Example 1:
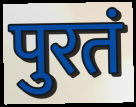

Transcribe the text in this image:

पुरतं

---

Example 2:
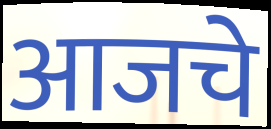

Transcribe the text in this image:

आजचे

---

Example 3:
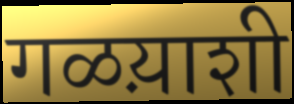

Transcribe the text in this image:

गळय़ाशी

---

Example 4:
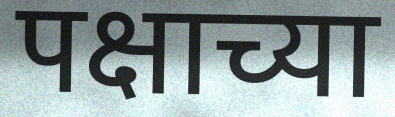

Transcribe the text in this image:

पक्षाच्या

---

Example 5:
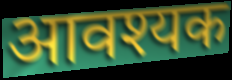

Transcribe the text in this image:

आवश्यक